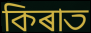
কিৰাত